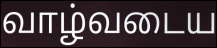
வாழ்வடைய